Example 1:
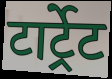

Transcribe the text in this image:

टार्ट्रेट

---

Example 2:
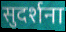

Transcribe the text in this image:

सुदर्शना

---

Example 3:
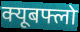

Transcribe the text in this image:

क्यूबफ्लो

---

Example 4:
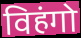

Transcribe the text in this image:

विहंगो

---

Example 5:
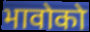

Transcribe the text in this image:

भावोको